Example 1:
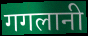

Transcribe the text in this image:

गगलानी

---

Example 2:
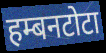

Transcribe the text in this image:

हम्बनटोटा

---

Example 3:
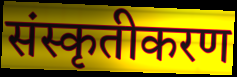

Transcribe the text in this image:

संस्कृतीकरण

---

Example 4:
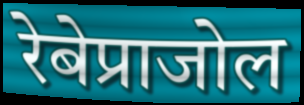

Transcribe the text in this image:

रेबेप्राजोल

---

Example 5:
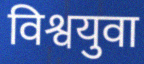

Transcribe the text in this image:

विश्वयुवा